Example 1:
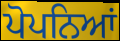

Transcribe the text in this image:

ਪੋਪਨਿਆਂ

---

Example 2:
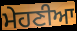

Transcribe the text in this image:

ਮੇਹਣੀਆ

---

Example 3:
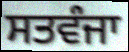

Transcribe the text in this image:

ਸਤਵੰਜਾ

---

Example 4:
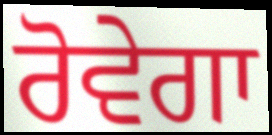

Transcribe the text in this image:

ਰੋਵੇਗਾ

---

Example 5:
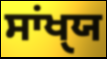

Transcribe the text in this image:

ਸਾਂਖੑਯ